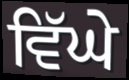
ਵਿੱਘੇ